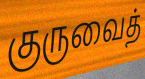
குருவைத்